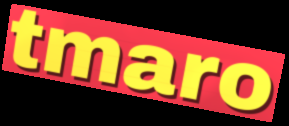
tmaro